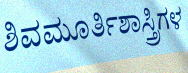
ಶಿವಮೂರ್ತಿಶಾಸ್ತ್ರಿಗಳ